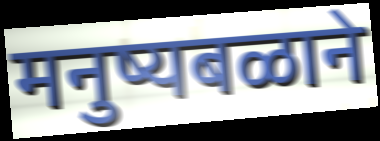
मनुष्यबळाने